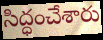
సిద్ధంచేశారు